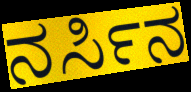
ನರ್ಸಿನ